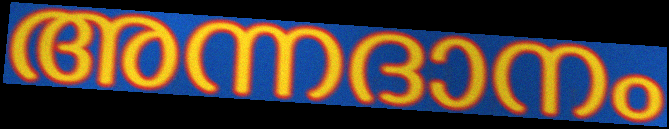
അന്നദാനം